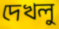
দেখলু